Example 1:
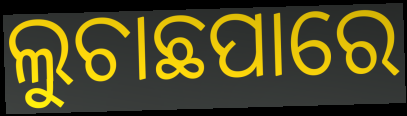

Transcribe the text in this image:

ଲୁଚାଛପାରେ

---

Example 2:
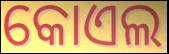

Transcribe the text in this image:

କୋଏଲ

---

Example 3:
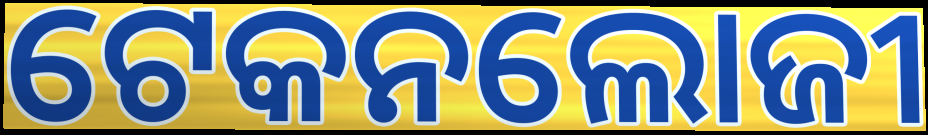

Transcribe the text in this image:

ଟେକନଲୋଜୀ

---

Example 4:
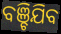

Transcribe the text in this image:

ବଞ୍ଚିଯିବ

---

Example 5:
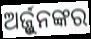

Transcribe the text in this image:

ଅର୍ଜ୍ଜୁନଙ୍କର